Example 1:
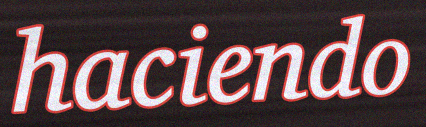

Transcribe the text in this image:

haciendo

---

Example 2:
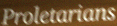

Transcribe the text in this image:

Proletarians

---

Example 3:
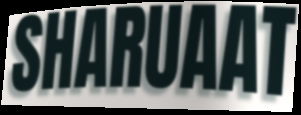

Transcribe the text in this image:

SHARUAAT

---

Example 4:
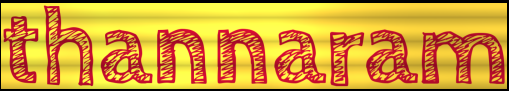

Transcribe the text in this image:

thannaram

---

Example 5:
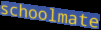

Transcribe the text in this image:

schoolmate